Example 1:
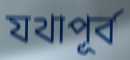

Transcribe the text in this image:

যথাপূর্ব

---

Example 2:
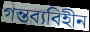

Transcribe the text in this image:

গন্তব্যবিহীন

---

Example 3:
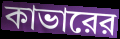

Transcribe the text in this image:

কাভারের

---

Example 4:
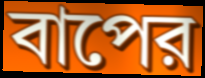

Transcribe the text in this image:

বাপের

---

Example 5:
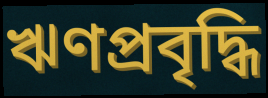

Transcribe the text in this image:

ঋণপ্রবৃদ্ধি